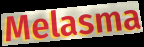
Melasma